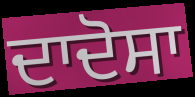
ਦਾਦੋਸਾ